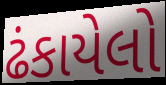
ઢંકાયેલો